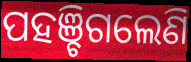
ପହଞ୍ଚିଗଲେଣି